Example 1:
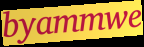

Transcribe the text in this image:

byammwe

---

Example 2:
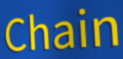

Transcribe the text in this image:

Chain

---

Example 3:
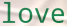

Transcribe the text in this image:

love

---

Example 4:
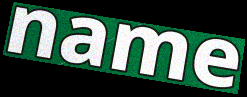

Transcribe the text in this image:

name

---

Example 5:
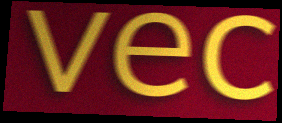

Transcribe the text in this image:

vec